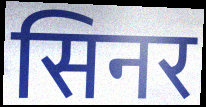
सिनर